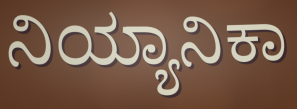
ನಿಯ್ಯಾನಿಕಾ